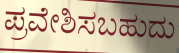
ಪ್ರವೇಶಿಸಬಹುದು